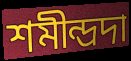
শমীন্দ্রদা